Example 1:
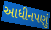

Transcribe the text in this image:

આધીનપણું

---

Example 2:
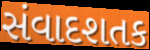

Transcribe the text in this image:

સંવાદશતક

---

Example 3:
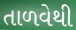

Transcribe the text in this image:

તાળવેથી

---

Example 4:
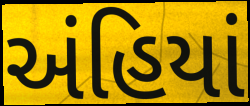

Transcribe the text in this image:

અંહિયાં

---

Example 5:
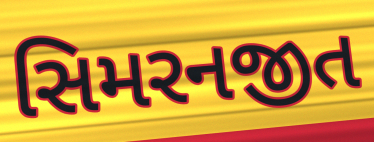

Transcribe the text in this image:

સિમરનજીત